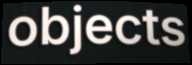
objects